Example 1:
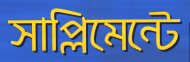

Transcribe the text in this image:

সাপ্লিমেন্টে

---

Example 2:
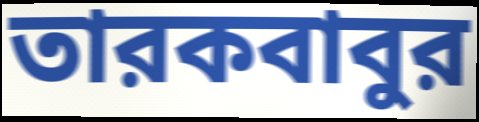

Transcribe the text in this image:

তারকবাবুর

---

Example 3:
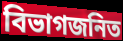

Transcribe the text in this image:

বিভাগজনিত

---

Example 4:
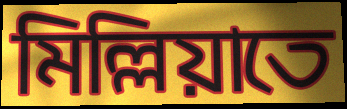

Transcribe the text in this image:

মিল্লিয়াতে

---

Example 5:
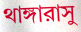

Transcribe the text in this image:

থাঙ্গারাসু